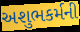
અશુભકર્મની